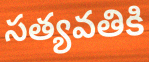
సత్యవతికి